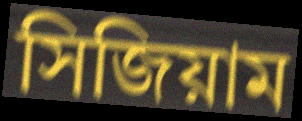
সিজিয়াম